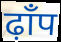
ढ़ाँप